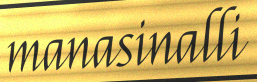
manasinalli